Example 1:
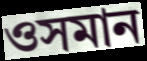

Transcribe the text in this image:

ওসমান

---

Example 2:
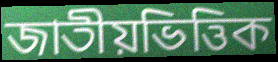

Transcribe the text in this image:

জাতীয়ভিত্তিক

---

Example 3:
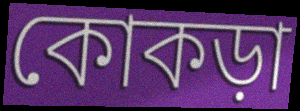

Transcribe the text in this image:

কোকড়া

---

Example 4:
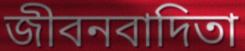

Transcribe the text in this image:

জীবনবাদিতা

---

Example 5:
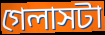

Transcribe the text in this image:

গেলাসটা